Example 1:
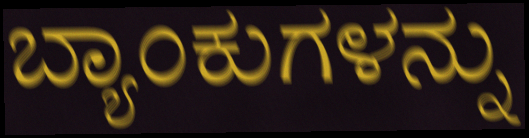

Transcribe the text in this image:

ಬ್ಯಾಂಕುಗಳನ್ನು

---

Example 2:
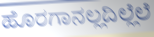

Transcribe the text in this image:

ಹೊರಗಾನಲ್ಲದಿಲ್ಲೆಲೆ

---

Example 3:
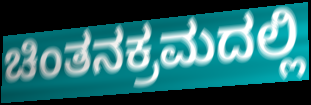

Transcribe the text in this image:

ಚಿಂತನಕ್ರಮದಲ್ಲಿ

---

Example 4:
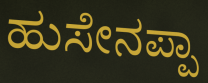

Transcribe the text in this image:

ಹುಸೇನಪ್ಪಾ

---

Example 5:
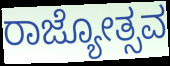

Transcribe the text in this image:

ರಾಜ್ಯೋತ್ಸವ